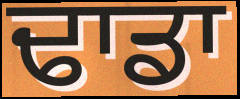
ਢਾਡਾ